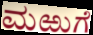
ಮಱುಗೆ